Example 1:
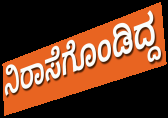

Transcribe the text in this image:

ನಿರಾಸೆಗೊಂಡಿದ್ದ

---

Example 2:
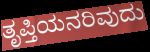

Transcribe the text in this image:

ತೃಪ್ತಿಯನರಿವುದು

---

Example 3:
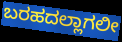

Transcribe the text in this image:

ಬರಹದಲ್ಲಾಗಲೀ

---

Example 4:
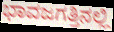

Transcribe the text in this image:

ಭಾವಜಗತ್ತಿನಲ್ಲಿ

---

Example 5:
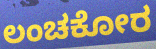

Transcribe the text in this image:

ಲಂಚಕೋರ